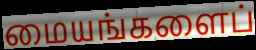
மையங்களைப்